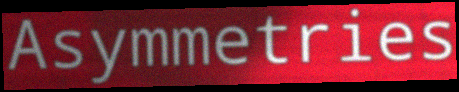
Asymmetries